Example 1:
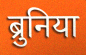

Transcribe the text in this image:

ब्रुनिया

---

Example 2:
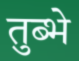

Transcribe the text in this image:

तुब्भे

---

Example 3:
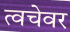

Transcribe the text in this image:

त्वचेवर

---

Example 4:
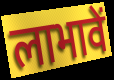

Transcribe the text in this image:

लाभावें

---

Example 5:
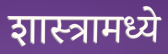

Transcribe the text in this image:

शास्त्रामध्ये